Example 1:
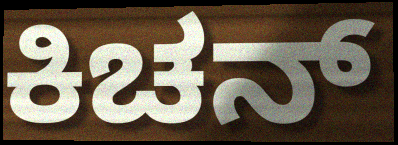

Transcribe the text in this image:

ಕಿಚನ್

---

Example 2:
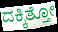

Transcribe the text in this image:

ದಕ್ಕಿತ್ತೋ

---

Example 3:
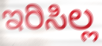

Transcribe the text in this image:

ಇರಿಸಿಲ್ಲ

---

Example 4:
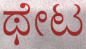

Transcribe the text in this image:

ಥೇಟ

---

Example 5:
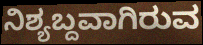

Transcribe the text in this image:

ನಿಶ್ಯಬ್ದವಾಗಿರುವ